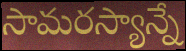
సామరస్యాన్నే